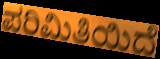
ಪರಿಮಿತಿಯಿದೆ